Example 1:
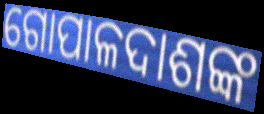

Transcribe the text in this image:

ଗୋପାଳଦାଶଙ୍କ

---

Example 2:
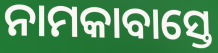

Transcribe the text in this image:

ନାମକାବାସ୍ତେ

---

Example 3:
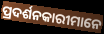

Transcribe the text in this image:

ପ୍ରଦର୍ଶନକାରୀମାନେ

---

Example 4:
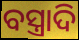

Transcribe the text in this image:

ବସ୍ତ୍ରାଦି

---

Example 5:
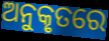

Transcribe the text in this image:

ଅନୁକୃତରେ